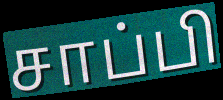
சாப்பி